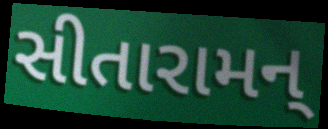
સીતારામન્